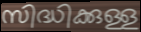
സിദ്ധിക്കുള്ള